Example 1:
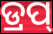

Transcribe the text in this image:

ଡ୍ରପ୍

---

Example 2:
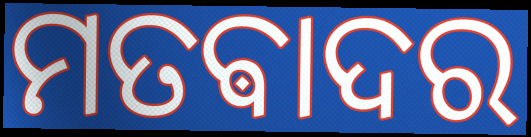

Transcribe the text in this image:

ମତଵାଦର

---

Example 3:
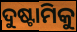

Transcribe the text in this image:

ଦୁଷ୍ଟାମିକୁ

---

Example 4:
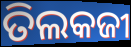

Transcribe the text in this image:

ତିଲକଜୀ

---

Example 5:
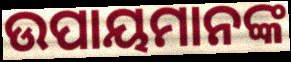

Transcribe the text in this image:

ଉପାୟମାନଙ୍କ